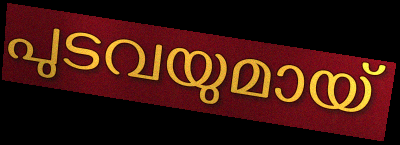
പുടവയുമായ്